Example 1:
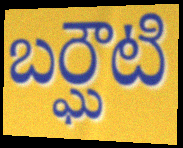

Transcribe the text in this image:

బర్ఘౌటి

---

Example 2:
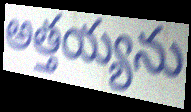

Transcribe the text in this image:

అత్తయ్యను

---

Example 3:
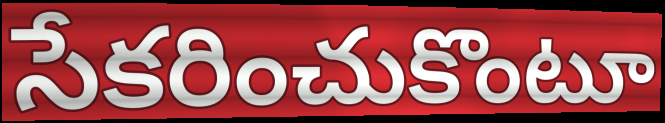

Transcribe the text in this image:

సేకరించుకొంటూ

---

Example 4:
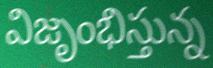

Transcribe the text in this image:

విజృంభిస్తున్న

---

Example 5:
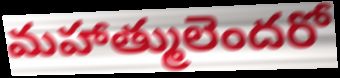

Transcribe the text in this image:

మహాత్ములెందరో